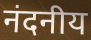
नंदनीय